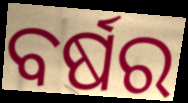
ବର୍ଷର